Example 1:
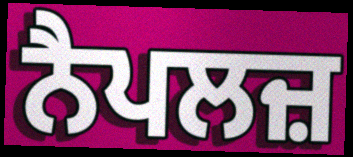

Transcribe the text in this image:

ਨੈਪਲਜ਼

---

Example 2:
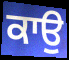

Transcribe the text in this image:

ਕਾਉ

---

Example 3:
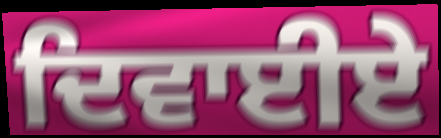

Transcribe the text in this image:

ਦਿਵਾਈਏ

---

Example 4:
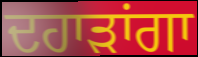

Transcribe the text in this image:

ਦਹਾੜਾਂਗਾ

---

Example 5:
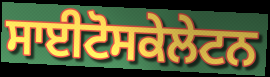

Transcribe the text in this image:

ਸਾਈਟੋਸਕੇਲੇਟਨ